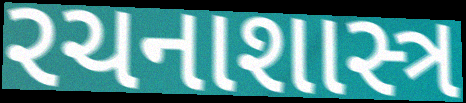
રચનાશાસ્ત્ર